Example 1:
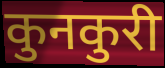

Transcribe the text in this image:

कुनकुरी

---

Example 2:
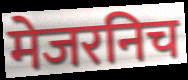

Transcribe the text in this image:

मेजरनिच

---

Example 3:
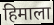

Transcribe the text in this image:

हिमाला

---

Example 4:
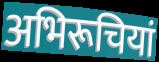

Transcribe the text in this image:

अभिरूचियां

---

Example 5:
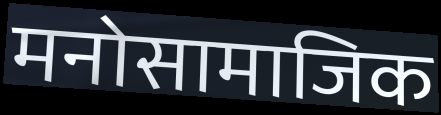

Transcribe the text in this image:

मनोसामाजिक